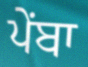
ਪੇਂਬਾ